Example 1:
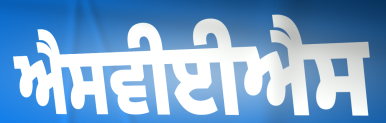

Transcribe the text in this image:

ਐਸਵੀਈਐਸ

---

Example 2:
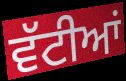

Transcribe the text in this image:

ਵੱਟੀਆਂ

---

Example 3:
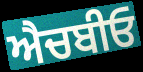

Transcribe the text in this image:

ਐਚਬੀਓ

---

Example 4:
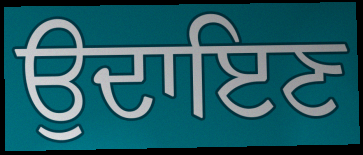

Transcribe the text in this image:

ਉਦਾਇਣ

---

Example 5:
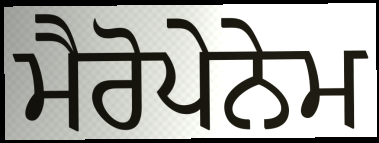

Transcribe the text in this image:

ਮੈਰੋਪੇਨੇਮ